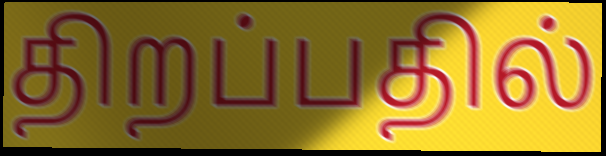
திறப்பதில்